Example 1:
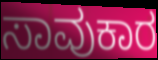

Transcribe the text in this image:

ಸಾವುಕಾರ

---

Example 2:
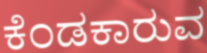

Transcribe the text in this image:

ಕೆಂಡಕಾರುವ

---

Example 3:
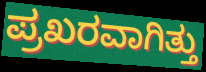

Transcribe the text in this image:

ಪ್ರಖರವಾಗಿತ್ತು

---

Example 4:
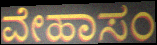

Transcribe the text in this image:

ವೇಹಾಸಂ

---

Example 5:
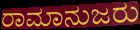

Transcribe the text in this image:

ರಾಮಾನುಜರು